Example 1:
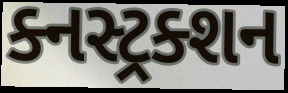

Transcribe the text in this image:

ક્નસ્ટ્રક્શન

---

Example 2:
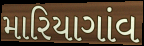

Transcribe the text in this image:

મારિયાગાંવ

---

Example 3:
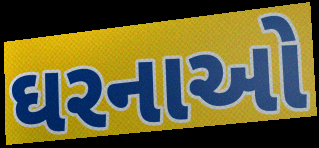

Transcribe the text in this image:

ઘરનાઓ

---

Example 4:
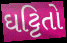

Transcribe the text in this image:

ઘટ્ટિતો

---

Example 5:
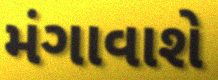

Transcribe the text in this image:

મંગાવાશે